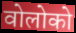
वोलोको